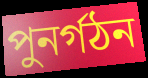
পুনৰ্গঠন